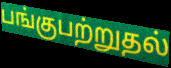
பங்குபற்றுதல்